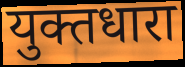
युक्तधारा